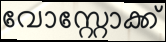
വോസ്റ്റോക്ക്